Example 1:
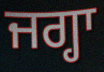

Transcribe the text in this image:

ਜਗ੍ਹਾ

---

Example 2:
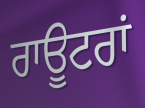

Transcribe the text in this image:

ਰਾਊਟਰਾਂ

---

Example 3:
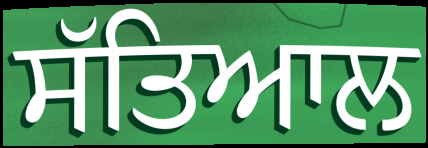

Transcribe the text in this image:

ਸੱਤਿਆਲ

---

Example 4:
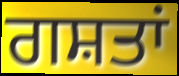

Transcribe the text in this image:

ਗਸ਼ਤਾਂ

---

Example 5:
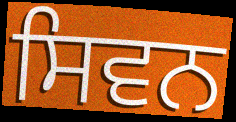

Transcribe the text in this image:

ਸਿਵਨ